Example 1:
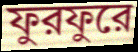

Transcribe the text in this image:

ফুরফুরে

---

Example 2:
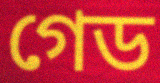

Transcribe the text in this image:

গেড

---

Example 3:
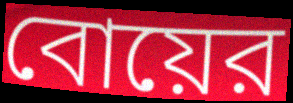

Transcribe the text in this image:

বোয়ের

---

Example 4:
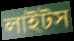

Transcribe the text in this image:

লাইটস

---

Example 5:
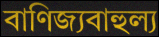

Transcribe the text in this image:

বাণিজ্যবাহুল্য